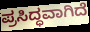
ಪ್ರಸಿದ್ಧವಾಗಿದೆ